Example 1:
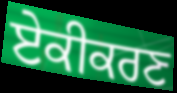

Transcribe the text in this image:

ਏਕੀਕਰਣ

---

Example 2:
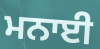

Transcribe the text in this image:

ਮਨਾਈ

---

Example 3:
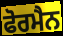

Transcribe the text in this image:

ਫੋਰਮੈਨ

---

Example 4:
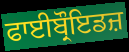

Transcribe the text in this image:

ਫਾਈਬ੍ਰੌਇਡਜ਼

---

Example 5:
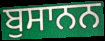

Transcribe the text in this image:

ਬੁਸਾਨਨ